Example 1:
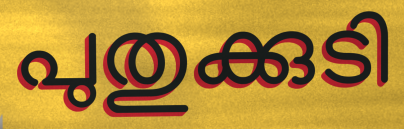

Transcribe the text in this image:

പുതുക്കുടി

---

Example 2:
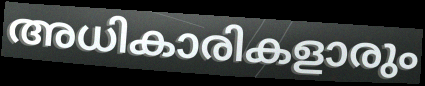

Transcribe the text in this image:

അധികാരികളാരും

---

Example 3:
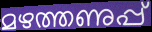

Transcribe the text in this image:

മഴത്തണുപ്പ്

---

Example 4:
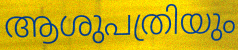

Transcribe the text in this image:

ആശുപത്രിയും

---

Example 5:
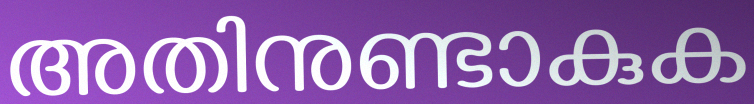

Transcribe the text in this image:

അതിനുണ്ടാകുക